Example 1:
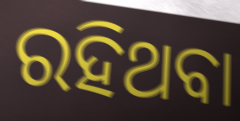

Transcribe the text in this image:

ରହିଥବା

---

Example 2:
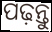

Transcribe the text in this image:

ପଢ଼ନ୍ତୁ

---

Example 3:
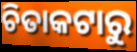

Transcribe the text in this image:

ଚିତାକଟାରୁ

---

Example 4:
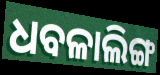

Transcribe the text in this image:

ଧବଳାଲିଙ୍ଗ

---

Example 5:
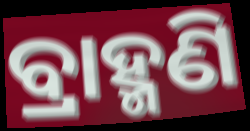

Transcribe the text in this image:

ବ୍ରାହ୍ମଣି